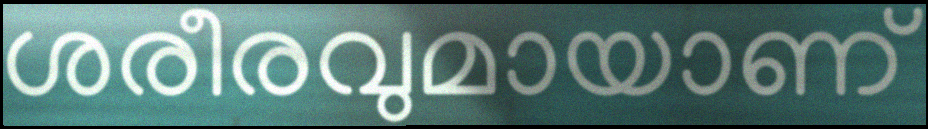
ശരീരവുമായാണ്